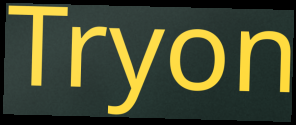
Tryon